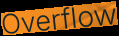
Overflow